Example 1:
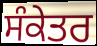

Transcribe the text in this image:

ਸੰਕੇਤਰ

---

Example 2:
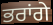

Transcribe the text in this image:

ਭਰਾਂਗੇ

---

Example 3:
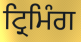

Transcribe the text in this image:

ਟ੍ਰਿਮਿੰਗ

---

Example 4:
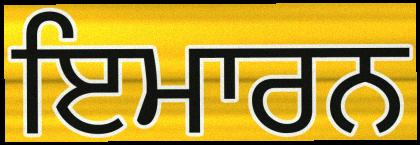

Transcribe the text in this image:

ਇਮਾਰਨ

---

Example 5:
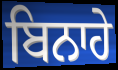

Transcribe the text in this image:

ਬਿਨਾਹੇ